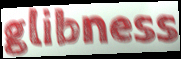
glibness